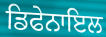
ਡਿਫੇਨਾਇਲ